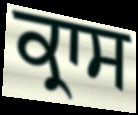
ਕ੍ਰਾਸ